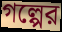
গল্পের